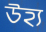
উহ্য